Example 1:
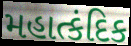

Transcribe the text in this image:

મહાત્કંદિક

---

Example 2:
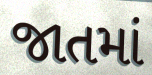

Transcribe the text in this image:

જાતમાં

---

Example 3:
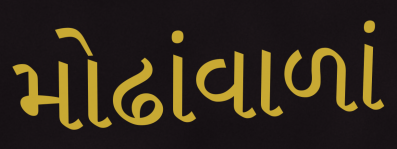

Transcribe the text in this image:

મોઢાંવાળાં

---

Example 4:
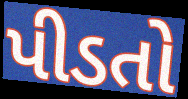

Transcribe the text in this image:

પીડતો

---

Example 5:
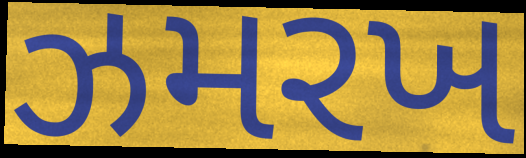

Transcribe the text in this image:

ઝમરખ